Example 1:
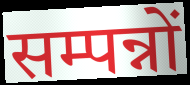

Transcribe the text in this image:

सम्पन्नों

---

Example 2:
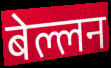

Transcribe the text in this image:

बेल्लन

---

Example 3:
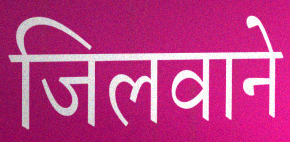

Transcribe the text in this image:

जिलवाने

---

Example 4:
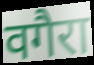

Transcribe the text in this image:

वगैरा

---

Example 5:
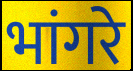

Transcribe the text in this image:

भांगरे